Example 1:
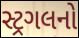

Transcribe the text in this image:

સ્ટ્રગલનો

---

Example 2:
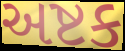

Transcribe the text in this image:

અષ્ટક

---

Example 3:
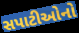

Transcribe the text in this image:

સપાટીઓનો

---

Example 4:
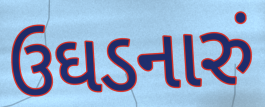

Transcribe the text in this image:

ઉઘડનારું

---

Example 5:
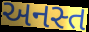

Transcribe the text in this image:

અનસ્ત